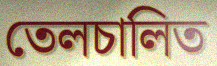
তেলচালিত